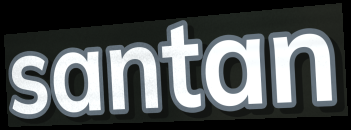
santan